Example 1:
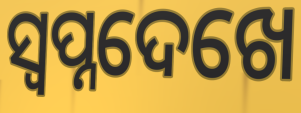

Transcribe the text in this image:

ସ୍ୱପ୍ନଦେଖେ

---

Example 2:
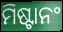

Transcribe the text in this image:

ମିଷ୍ଟାନଂ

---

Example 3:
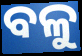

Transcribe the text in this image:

ବଳୁ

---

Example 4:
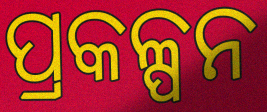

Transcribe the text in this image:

ପ୍ରକଳ୍ପନ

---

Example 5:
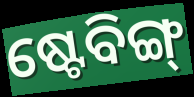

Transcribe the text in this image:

ଷ୍ଟେବିଙ୍ଗ୍